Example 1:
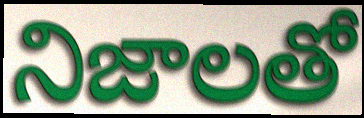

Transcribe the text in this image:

నిజాలతో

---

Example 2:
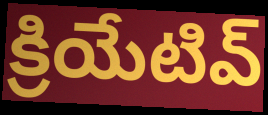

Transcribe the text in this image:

క్రియేటివ్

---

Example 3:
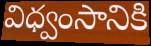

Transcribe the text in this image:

విధ్వంసానికి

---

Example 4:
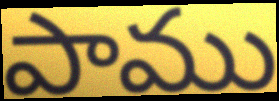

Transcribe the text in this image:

పాము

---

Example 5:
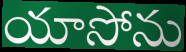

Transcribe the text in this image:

యాసోను